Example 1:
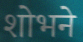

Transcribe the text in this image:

शोभने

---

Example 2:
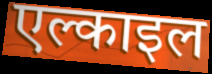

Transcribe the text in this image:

एल्काइल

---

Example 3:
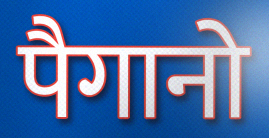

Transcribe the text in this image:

पैगानो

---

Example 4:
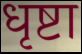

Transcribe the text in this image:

धृष्टा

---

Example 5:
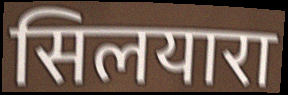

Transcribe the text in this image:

सिलयारा